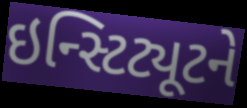
ઇન્સ્ટિટ્યૂટને